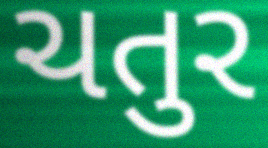
ચતુર